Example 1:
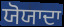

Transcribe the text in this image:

ਯੋਯਾਦਾ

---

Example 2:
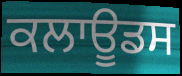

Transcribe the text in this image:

ਕਲਾਊਡਸ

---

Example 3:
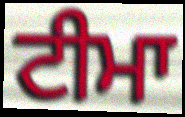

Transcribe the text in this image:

ਟੀਮਾ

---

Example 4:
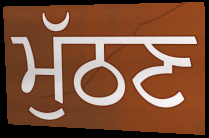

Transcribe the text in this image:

ਮੁੱਠਣ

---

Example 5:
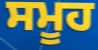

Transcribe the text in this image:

ਸਮੂਹ